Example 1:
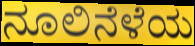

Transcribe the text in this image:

ನೂಲಿನೆಳೆಯ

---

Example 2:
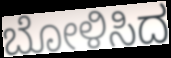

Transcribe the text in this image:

ಬೋಳಿಸಿದ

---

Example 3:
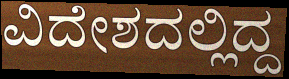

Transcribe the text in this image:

ವಿದೇಶದಲ್ಲಿದ್ದ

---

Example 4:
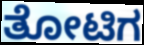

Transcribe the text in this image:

ತೋಟಿಗ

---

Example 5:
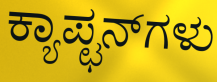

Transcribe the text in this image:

ಕ್ಯಾಪ್ಟನ್‌ಗಳು